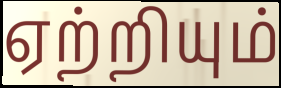
ஏற்றியும்